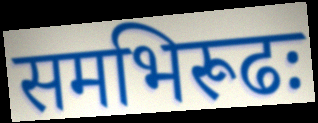
समभिरूढः